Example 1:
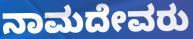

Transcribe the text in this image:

ನಾಮದೇವರು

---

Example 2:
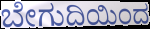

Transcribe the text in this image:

ಬೇಗುದಿಯಿಂದ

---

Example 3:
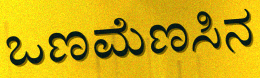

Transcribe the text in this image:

ಒಣಮೆಣಸಿನ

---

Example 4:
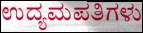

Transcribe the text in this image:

ಉದ್ಯಮಪತಿಗಳು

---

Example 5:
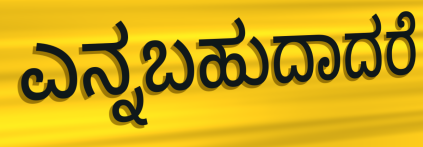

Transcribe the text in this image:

ಎನ್ನಬಹುದಾದರೆ